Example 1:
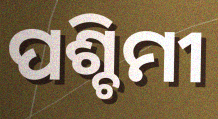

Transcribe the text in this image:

ପଶ୍ଚିମୀ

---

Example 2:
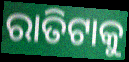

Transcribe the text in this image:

ରାତିଟାକୁ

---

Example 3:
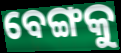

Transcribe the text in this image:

ବେଙ୍ଗକୁ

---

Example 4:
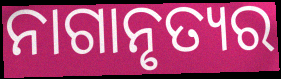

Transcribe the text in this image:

ନାଗାନୃତ୍ୟର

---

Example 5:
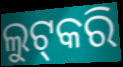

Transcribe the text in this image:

ଲୁଟ୍‍କରି